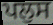
ਪਲੁਸ